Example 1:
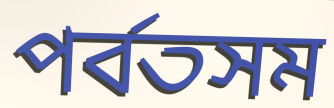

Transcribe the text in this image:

পর্বতসম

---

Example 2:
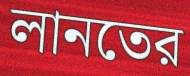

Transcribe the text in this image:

লানতের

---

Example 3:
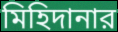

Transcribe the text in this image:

মিহিদানার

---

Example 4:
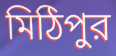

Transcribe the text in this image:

মিঠিপুর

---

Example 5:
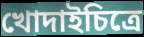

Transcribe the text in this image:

খোদাইচিত্রে